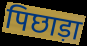
पिछाड़ा